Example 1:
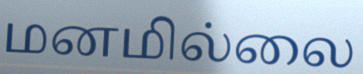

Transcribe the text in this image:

மனமில்லை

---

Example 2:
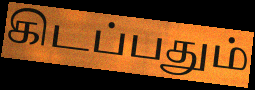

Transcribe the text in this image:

கிடப்பதும்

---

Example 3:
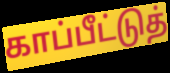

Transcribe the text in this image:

காப்பீட்டுத்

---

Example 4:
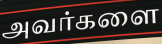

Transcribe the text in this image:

அவர்களை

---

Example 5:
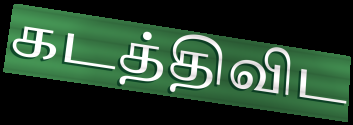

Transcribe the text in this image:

கடத்திவிட